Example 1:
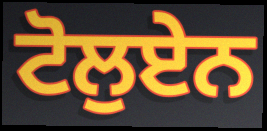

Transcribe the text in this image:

ਟੋਲੁਏਨ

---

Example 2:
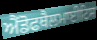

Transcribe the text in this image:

ਐਂਡੋਫਥੈਲਮਾਈਟਿਸ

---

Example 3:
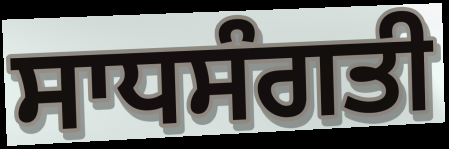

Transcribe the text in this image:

ਸਾਧਸੰਗਤੀ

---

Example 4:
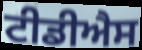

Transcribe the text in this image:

ਟੀਡੀਐਸ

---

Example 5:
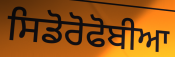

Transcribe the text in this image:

ਸਿਡੋਰੋਫੋਬੀਆ